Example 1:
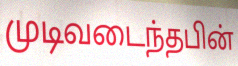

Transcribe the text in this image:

முடிவடைந்தபின்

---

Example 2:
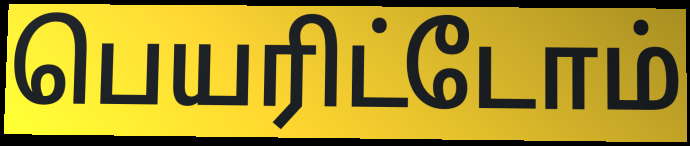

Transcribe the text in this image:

பெயரிட்டோம்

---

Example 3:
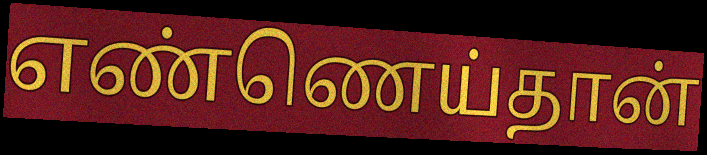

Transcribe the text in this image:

எண்ணெய்தான்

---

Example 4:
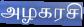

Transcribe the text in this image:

அழகரசி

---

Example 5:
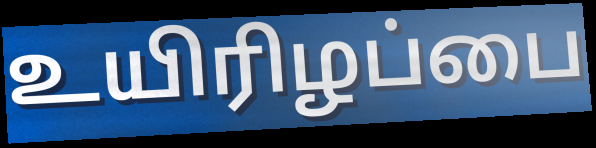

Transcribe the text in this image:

உயிரிழப்பை